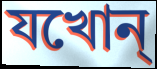
যখোন্